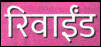
रिवाईंड